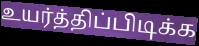
உயர்த்திப்பிடிக்க